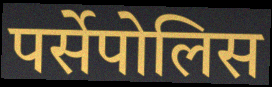
पर्सेपोलिस